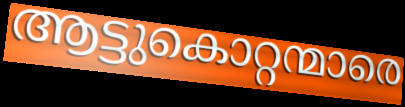
ആട്ടുകൊറ്റന്മാരെ